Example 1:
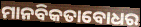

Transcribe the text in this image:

ମାନବିକତାବୋଧର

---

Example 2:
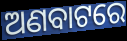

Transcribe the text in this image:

ଅଣବାଟରେ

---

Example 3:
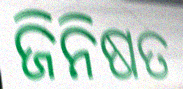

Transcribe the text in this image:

ଜିନିଷତ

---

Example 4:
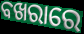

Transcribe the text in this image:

ବଖରାରେ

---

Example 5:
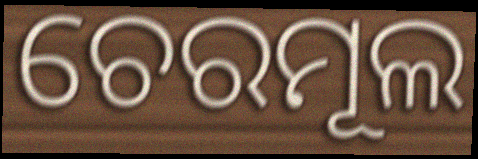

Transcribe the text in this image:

ଚେରମୂଲ